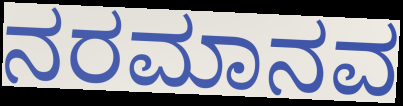
ನರಮಾನವ